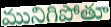
మునిగిపోతూ